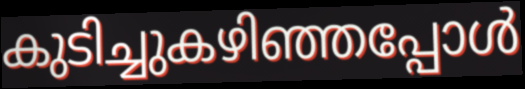
കുടിച്ചുകഴിഞ്ഞപ്പോൾ